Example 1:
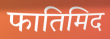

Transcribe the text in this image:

फातिमिद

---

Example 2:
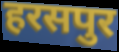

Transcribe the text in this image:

हरसपुर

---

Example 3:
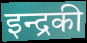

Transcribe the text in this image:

इन्द्रकी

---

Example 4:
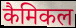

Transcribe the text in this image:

कैमिकल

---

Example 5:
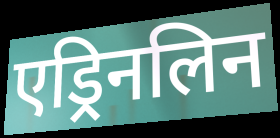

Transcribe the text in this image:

एड्रिनलिन